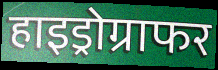
हाइड्रोग्राफर